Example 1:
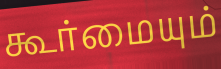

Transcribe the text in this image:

கூர்மையும்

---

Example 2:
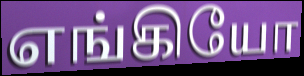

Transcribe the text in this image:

எங்கியோ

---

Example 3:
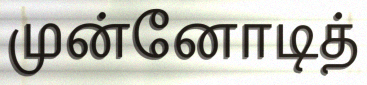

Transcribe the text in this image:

முன்னோடித்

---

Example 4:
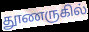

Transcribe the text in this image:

தூணருகில்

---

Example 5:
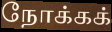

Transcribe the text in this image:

நோக்கக்